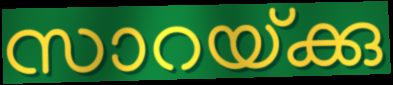
സാറയ്‌ക്കു